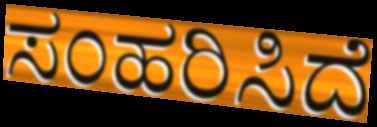
ಸಂಹರಿಸಿದೆ